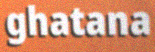
ghatana